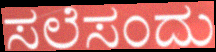
ಸಲೆಸಂದು